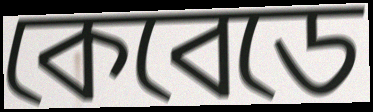
কেবেডে